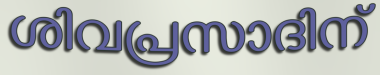
ശിവപ്രസാദിന്